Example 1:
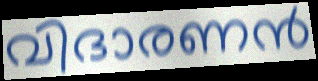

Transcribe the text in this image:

വിദാരണൻ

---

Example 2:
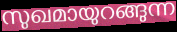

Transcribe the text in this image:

സുഖമായുറങ്ങുന്ന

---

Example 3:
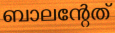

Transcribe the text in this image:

ബാലന്റേത്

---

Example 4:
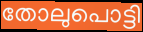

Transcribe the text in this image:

തോലുപൊട്ടി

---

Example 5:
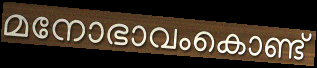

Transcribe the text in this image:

മനോഭാവംകൊണ്ട്